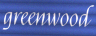
greenwood